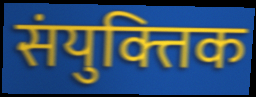
संयुक्तिक